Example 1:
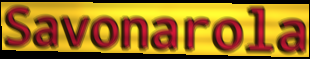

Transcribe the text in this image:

Savonarola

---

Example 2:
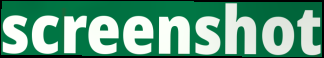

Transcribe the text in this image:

screenshot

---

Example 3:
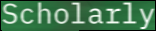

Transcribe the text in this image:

Scholarly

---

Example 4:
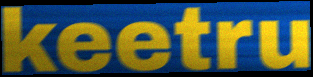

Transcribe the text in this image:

keetru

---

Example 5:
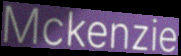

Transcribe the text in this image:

Mckenzie